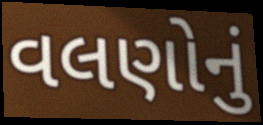
વલણોનું